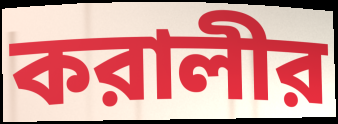
করালীর